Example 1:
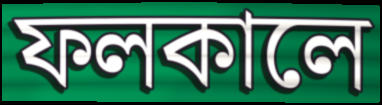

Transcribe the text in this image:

ফলকালে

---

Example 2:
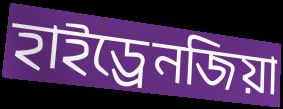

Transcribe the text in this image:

হাইড্রেনজিয়া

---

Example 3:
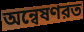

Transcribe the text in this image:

অন্বেষণরত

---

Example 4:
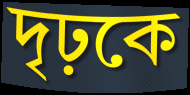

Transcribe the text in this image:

দৃঢ়কে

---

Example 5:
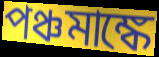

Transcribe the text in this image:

পঞ্চমাঙ্কে